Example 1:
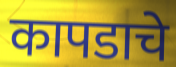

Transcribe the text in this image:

कापडाचे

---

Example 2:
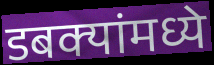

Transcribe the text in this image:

डबक्यांमध्ये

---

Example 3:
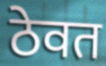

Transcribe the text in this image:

ठेवत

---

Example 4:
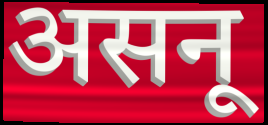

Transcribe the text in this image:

असनू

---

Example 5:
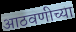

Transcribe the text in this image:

आठवणीच्या